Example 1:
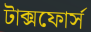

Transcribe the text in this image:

টাক্সফোর্স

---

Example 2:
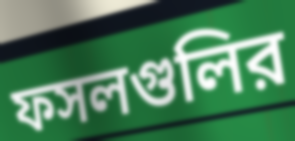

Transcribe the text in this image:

ফসলগুলির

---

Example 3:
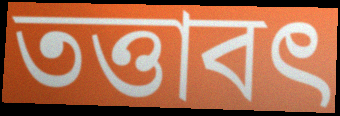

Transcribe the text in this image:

তত্তাবৎ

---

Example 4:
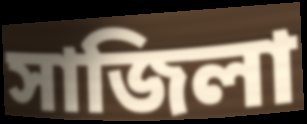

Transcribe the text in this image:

সাজিলা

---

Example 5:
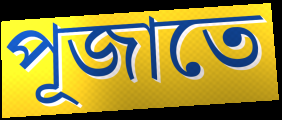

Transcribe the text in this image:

পূজাতে